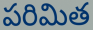
పరిమిత